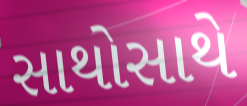
સાથોસાથે